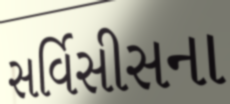
સર્વિસીસના